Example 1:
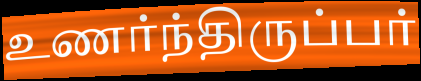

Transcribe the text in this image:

உணர்ந்திருப்பர்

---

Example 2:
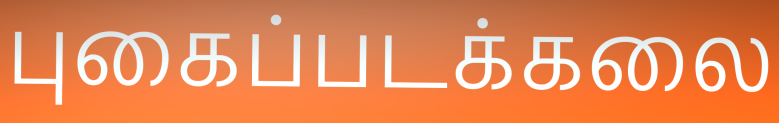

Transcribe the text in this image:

புகைப்படக்கலை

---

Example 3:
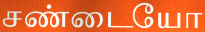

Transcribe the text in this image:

சண்டையோ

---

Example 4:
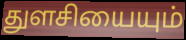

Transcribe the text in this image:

துளசியையும்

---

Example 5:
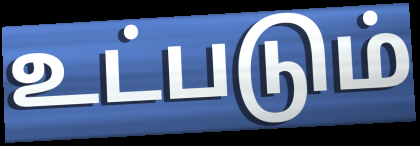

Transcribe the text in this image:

உட்படும்